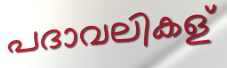
പദാവലികള്